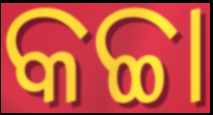
କଚ୍ଚା